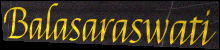
Balasaraswati